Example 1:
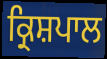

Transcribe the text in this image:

ਕ੍ਰਿਸ਼ਪਾਲ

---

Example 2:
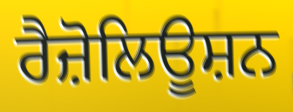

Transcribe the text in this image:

ਰੈਜ਼ੋਲਿਊਸ਼ਨ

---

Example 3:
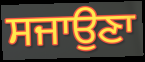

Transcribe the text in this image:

ਸਜਾਉਣਾ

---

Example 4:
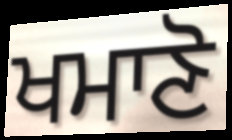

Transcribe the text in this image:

ਖਮਾਣੋ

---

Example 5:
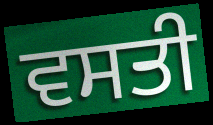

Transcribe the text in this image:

ਵਸਤੀ